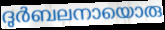
ദുർബലനായൊരു